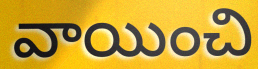
వాయించి